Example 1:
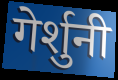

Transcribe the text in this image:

गेर्शुनी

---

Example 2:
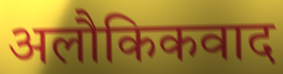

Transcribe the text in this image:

अलौकिकवाद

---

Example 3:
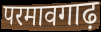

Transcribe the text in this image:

परमावगाढ़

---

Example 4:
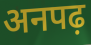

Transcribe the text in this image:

अनपढ़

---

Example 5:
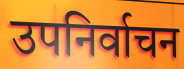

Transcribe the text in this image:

उपनिर्वाचन